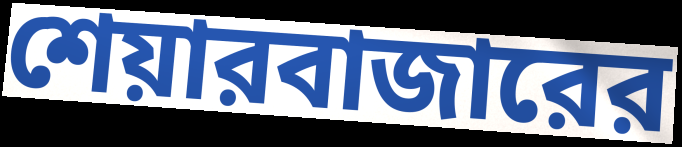
শেয়ারবাজারের